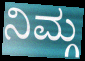
ನಿಮ್ಗ